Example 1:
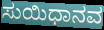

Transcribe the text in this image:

ಸುಯಿಧಾನವ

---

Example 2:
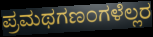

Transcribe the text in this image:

ಪ್ರಮಥಗಣಂಗಳೆಲ್ಲರ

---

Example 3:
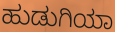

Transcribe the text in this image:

ಹುಡುಗಿಯಾ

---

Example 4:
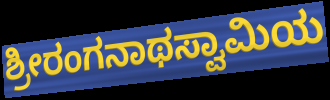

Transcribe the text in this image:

ಶ್ರೀರಂಗನಾಥಸ್ವಾಮಿಯ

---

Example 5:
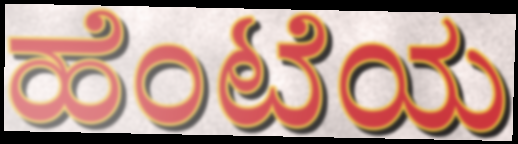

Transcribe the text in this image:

ಹೆಂಟೆಯ